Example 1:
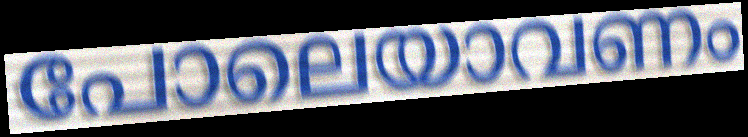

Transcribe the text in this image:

പോലെയാവണം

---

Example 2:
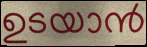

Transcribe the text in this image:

ഉടയാൻ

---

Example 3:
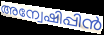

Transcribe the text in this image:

അന്വേഷിപ്പിൻ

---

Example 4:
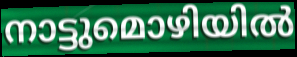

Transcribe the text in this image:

നാട്ടുമൊഴിയിൽ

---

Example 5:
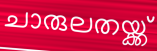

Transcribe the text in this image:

ചാരുലതയ്ക്ക്